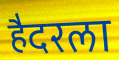
हैदरला